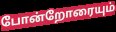
போன்றோரையும்